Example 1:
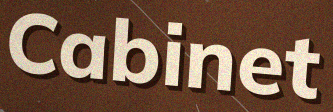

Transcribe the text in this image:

Cabinet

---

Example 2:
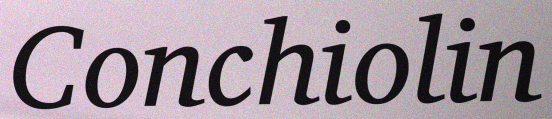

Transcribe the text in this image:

Conchiolin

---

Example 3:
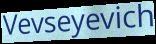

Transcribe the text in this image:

Vevseyevich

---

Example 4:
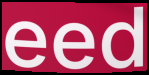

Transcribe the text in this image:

eed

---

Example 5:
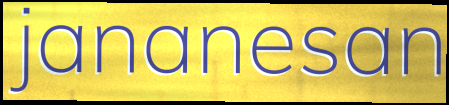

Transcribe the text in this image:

jananesan